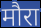
मौरा